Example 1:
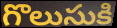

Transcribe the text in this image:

గొలుసుకి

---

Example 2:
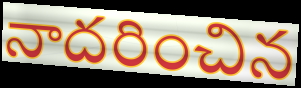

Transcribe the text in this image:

నాదరించిన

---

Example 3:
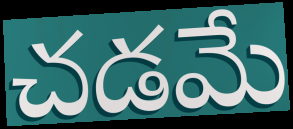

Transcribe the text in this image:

చడమే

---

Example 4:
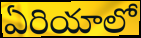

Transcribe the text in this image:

ఏరియాలో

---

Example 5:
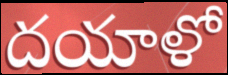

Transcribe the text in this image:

దయాళో